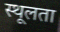
स्थूलता